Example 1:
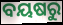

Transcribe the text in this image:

ବୟଷରୁ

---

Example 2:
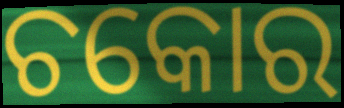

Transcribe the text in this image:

ଚକୋର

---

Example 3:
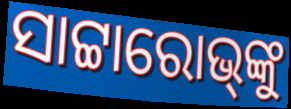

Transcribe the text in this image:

ସାଟ୍ଟାରୋଭ୍‌ଙ୍କୁ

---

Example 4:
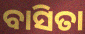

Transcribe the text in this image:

ବାସିତା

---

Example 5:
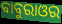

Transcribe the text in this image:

ବାବୁରାଓର